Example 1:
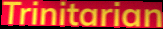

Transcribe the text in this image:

Trinitarian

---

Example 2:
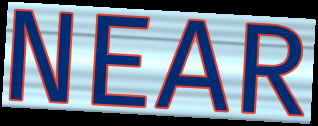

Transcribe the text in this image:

NEAR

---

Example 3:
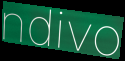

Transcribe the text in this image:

ndivo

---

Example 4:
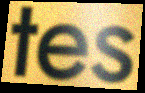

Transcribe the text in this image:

tes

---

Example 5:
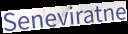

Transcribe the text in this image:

Seneviratne